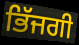
ਭਿੱਜਗੀ